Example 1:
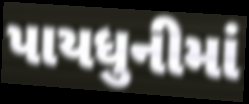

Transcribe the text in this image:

પાયધુનીમાં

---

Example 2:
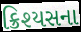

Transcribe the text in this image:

ક્રિશ્યસના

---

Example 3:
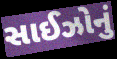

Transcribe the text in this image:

સાઈઝોનું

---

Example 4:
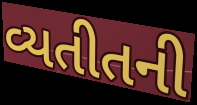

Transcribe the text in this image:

વ્યતીતની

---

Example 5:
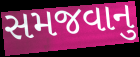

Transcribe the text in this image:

સમજવાનુ